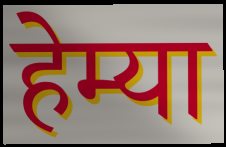
हेम्या